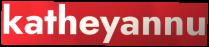
katheyannu